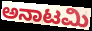
ಅನಾಟಮಿ